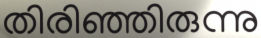
തിരിഞ്ഞിരുന്നു